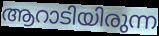
ആറാടിയിരുന്ന